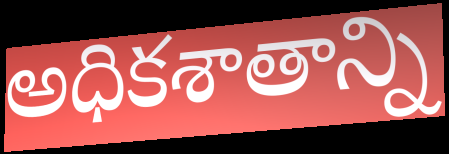
అధికశాతాన్ని